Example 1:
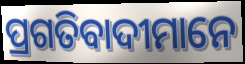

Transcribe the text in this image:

ପ୍ରଗତିବାଦୀମାନେ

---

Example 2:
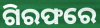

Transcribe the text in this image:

ଗିରଫରେ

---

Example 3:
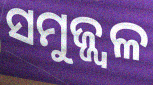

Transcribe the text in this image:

ସମୁଜ୍ଜ୍ୱଳ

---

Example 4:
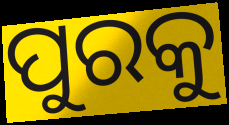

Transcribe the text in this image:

ପୁରକୁ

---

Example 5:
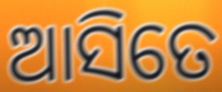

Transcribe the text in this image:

ଆସିତେ